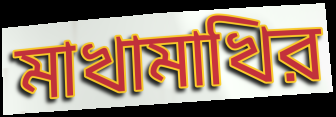
মাখামাখির